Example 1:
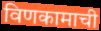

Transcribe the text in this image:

विणकामाची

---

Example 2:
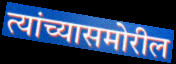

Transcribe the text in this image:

त्यांच्यासमोरील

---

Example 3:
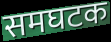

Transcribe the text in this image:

समघटक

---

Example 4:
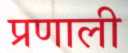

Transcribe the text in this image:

प्रणाली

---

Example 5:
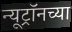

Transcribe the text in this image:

न्यूट्रॉनच्या